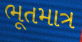
ભૂતમાત્ર